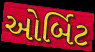
ઓર્બિટ